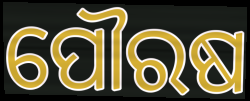
ପୌରଷ